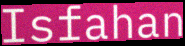
Isfahan